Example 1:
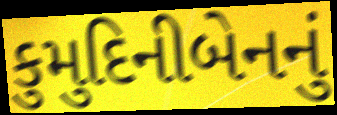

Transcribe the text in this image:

કુમુદિનીબેનનું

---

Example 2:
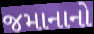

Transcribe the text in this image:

જમાનાનો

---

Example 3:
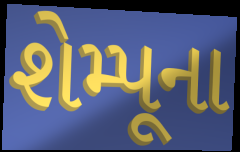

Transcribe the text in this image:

શેમ્પૂના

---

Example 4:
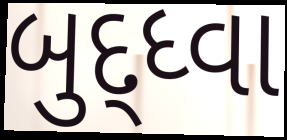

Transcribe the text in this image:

બુદ્ધ્વા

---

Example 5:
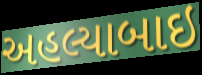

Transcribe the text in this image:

અહલ્યાબાઇ